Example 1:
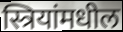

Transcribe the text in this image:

स्त्रियांमधील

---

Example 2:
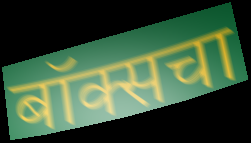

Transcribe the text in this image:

बॉक्सचा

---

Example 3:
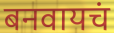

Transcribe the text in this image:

बनवायचं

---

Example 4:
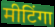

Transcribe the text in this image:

मीटिंगा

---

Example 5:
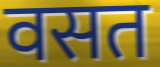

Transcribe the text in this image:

वसत